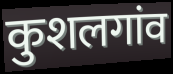
कुशलगांव